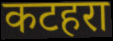
कटहरा